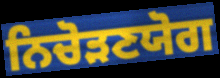
ਨਿਚੋੜਣਯੋਗ